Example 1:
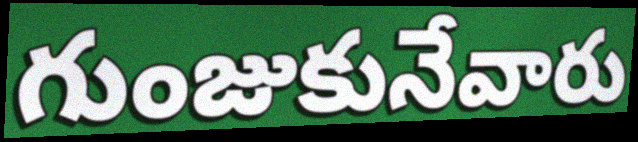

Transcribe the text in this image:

గుంజుకునేవారు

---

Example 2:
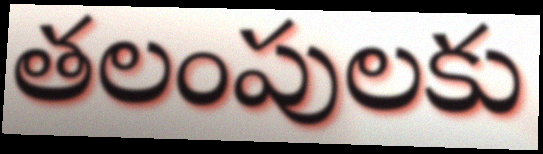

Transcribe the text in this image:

తలంపులకు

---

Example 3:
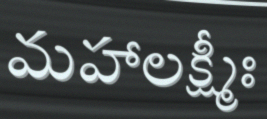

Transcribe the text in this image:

మహాలక్ష్మీః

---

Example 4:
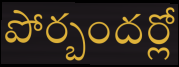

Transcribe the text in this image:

పోర్బందర్లో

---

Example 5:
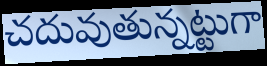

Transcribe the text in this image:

చదువుతున్నట్టుగా